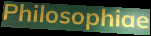
Philosophiae